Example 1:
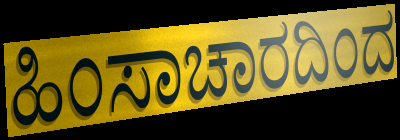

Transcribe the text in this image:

ಹಿಂಸಾಚಾರದಿಂದ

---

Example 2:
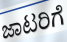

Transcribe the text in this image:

ಜಾಟರಿಗೆ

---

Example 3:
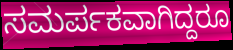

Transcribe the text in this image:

ಸಮರ್ಪಕವಾಗಿದ್ದರೂ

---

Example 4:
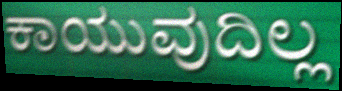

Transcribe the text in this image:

ಕಾಯುವುದಿಲ್ಲ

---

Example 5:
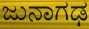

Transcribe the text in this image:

ಜುನಾಗಢ